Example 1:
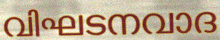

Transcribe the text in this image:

വിഘടനവാദ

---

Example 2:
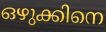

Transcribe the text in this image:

ഒഴുക്കിനെ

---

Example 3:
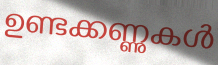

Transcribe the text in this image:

ഉണ്ടക്കണ്ണുകൾ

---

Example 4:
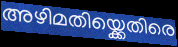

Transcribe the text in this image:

അഴിമതിയ്ക്കെതിരെ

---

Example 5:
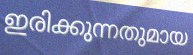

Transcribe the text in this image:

ഇരിക്കുന്നതുമായ